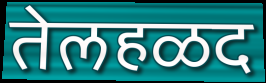
तेलहळद